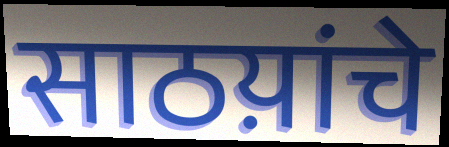
साठय़ांचे